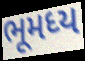
ભૂમધ્ય